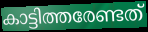
കാട്ടിത്തരേണ്ടത്